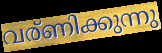
വര്ണിക്കുന്നു